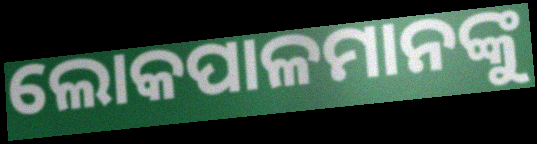
ଲୋକପାଳମାନଙ୍କୁ